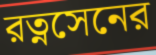
রত্নসেনের